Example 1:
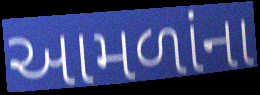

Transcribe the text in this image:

આમળાંના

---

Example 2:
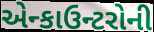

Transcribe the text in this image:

એન્કાઉન્ટરોની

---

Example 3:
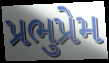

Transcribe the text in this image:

પ્રભુપ્રેમ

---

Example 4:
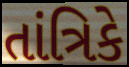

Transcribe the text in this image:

તાંત્રિકે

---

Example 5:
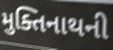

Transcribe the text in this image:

મુક્તિનાથની